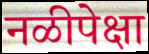
नळीपेक्षा